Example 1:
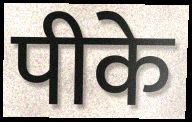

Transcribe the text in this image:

पीके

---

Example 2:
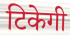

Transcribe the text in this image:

टिकेगी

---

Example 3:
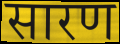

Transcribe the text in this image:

सारण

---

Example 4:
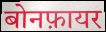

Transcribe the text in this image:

बोनफ़ायर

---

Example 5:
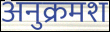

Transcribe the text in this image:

अनुक्रमश